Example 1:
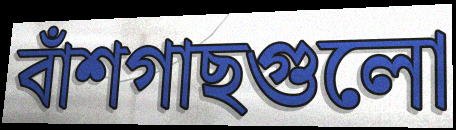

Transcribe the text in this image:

বাঁশগাছগুলো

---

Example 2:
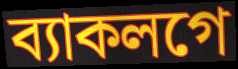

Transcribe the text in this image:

ব্যাকলগে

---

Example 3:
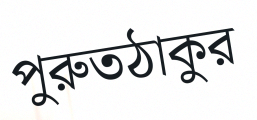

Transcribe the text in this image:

পুরুতঠাকুর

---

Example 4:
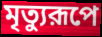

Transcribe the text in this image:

মৃত্যুরূপে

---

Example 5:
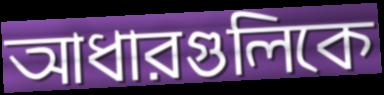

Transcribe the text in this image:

আধারগুলিকে